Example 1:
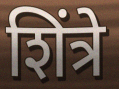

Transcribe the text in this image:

शिंत्रे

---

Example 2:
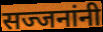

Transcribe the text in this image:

सज्जनांनी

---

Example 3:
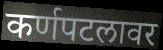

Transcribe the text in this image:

कर्णपटलावर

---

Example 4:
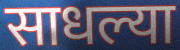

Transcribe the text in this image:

साधल्या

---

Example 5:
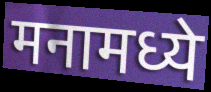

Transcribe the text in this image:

मनामध्ये